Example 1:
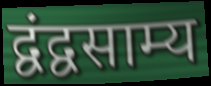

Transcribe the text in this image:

द्वंद्वसाम्य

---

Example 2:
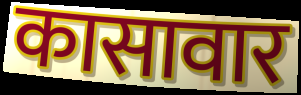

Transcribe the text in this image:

कासावार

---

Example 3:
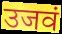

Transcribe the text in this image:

उजवं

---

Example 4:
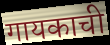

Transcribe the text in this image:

गायकाची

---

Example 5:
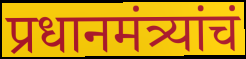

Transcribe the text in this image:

प्रधानमंत्र्यांचं